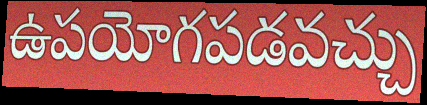
ఉపయోగపడవచ్చు